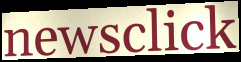
newsclick